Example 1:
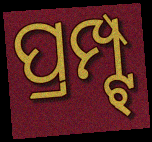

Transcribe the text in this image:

ପ୍ରମ୍ପ୍ଟ୍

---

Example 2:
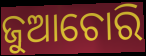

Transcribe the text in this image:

ଜୁଆଚୋରି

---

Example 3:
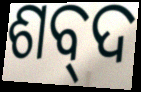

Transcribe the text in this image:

ଶବ୍‍ଦ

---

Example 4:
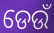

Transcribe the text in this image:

ଡେଉଁ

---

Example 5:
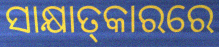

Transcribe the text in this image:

ସାକ୍ଷାତ୍‌କାରରେ